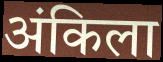
अंकिला